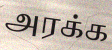
அரக்க